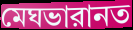
মেঘভারানত